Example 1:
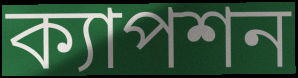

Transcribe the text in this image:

ক্যাপশন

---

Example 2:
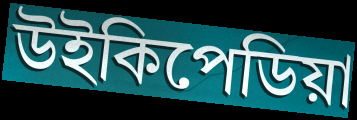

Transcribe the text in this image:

উইকিপেডিয়া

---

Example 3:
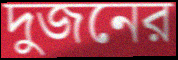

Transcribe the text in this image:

দুজনের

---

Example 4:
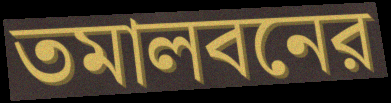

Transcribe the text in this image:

তমালবনের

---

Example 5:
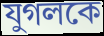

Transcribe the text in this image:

যুগলকে